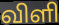
விளி